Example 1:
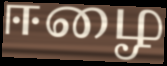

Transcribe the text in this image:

ஈழை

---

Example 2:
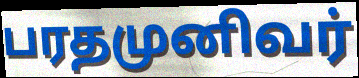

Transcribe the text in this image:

பரதமுனிவர்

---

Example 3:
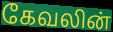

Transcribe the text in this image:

கேவலின்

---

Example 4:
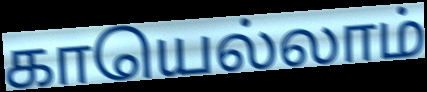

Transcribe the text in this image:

காயெல்லாம்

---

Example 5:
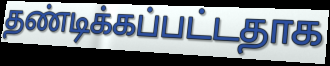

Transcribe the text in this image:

தண்டிக்கப்பட்டதாக